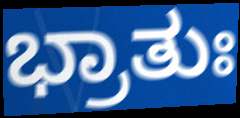
ಭ್ರಾತುಃ